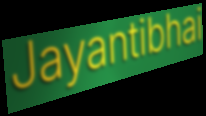
Jayantibhai